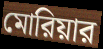
মোরিয়ার